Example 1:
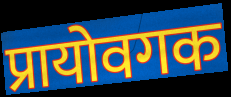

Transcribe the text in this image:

प्रायोवगक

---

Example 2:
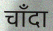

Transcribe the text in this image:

चाँदा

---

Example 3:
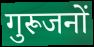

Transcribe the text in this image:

गुरूजनों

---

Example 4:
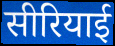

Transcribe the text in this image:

सीरियाई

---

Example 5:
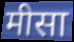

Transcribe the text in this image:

मीसा